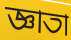
জ্ঞাতা